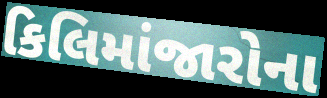
કિલિમાંજારોના